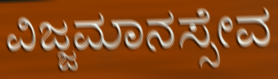
ವಿಜ್ಜಮಾನಸ್ಸೇವ